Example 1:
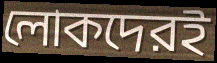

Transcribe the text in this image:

লোকদেরই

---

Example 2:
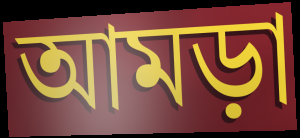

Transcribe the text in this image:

আমড়া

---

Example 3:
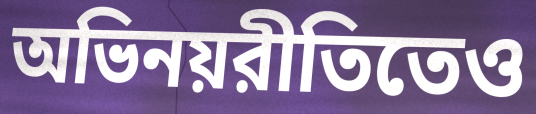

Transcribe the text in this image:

অভিনয়রীতিতেও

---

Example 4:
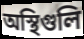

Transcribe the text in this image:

অস্থিগুলি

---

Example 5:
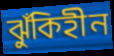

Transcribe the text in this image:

ঝুঁকিহীন